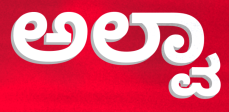
ಅಲ್ವಾ